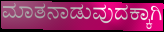
ಮಾತನಾಡುವುದಕ್ಕಾಗಿ